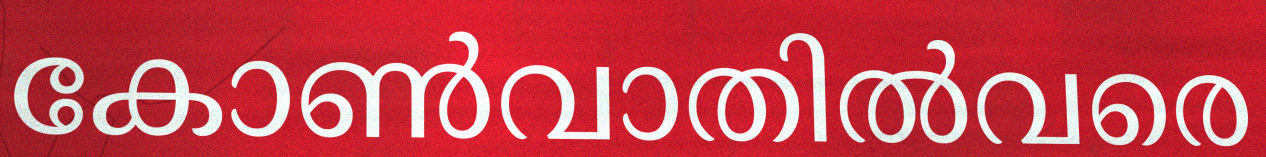
കോൺവാതിൽവരെ